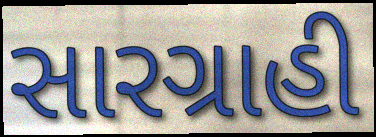
સારગ્રાહી